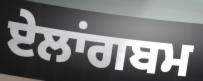
ਏਲਾਂਗਬਮ